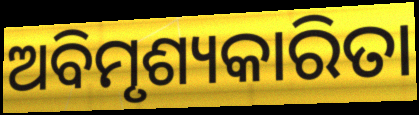
ଅବିମୃଶ୍ୟକାରିତା